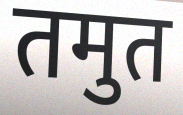
तमुत